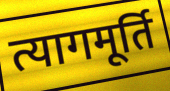
त्यागमूर्ति